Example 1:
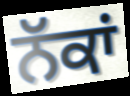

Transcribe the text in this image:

ਨੱਕਾਂ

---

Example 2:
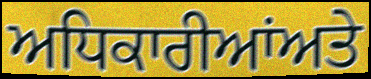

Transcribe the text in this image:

ਅਧਿਕਾਰੀਆਂਅਤੇ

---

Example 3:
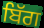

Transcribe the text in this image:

ਬਿੱਗ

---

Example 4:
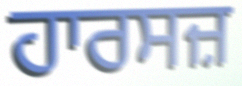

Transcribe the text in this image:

ਹਾਰਸਜ਼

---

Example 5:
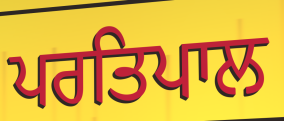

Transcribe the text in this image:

ਪਰਤਿਪਾਲ